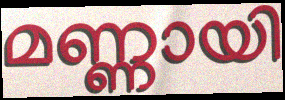
മണ്ണായി